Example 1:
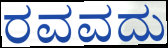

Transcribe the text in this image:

ರವವದು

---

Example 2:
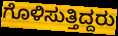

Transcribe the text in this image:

ಗೊಳಿಸುತ್ತಿದ್ದರು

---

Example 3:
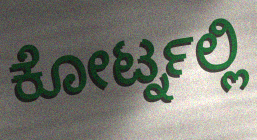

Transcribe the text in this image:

ಕೋರ್ಟ್ನಲ್ಲಿ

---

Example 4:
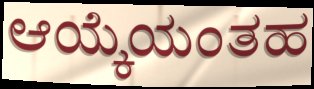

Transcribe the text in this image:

ಆಯ್ಕೆಯಂತಹ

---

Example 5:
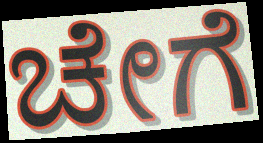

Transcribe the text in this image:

ಚೇಗೆ